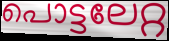
പൊട്ടലേറ്റ